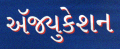
ઍજ્યુકેશન